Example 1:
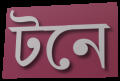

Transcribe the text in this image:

টনে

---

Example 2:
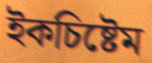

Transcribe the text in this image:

ইকচিষ্টেম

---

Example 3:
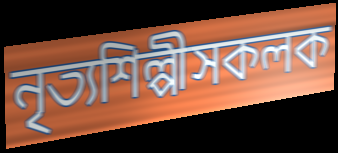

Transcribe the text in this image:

নৃত্যশিল্পীসকলক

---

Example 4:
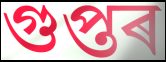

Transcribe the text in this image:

গুপ্তৰ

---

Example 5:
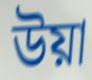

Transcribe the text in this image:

উয়া